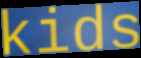
kids